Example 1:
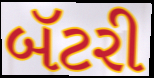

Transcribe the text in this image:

બૅટરી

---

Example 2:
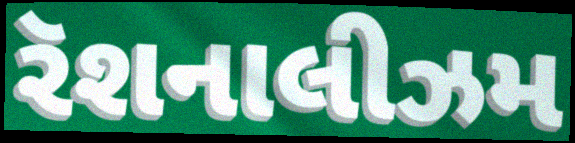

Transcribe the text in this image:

રૅશનાલીઝમ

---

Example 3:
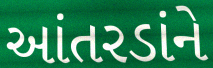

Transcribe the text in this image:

આંતરડાંને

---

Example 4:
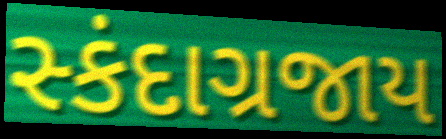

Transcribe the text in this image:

સ્કંદાગ્રજાય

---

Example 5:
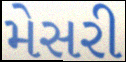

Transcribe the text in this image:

મેસરી